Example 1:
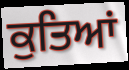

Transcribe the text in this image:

ਕੁਤਿਆਂ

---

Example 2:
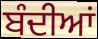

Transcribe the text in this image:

ਬੰਦੀਆਂ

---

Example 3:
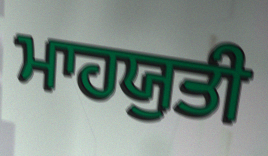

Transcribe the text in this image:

ਮਾਹਯੁਤੀ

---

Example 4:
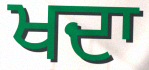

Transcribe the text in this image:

ਖਦਾ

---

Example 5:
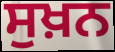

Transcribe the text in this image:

ਸੁਖ਼ਨ